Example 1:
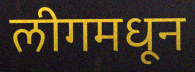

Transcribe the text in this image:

लीगमधून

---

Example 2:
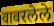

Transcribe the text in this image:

वावरलेले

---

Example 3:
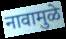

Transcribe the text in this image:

नावामुळे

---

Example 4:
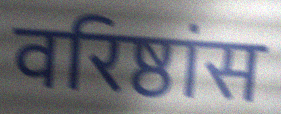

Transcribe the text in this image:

वरिष्ठांस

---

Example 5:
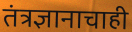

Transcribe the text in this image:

तंत्रज्ञानाचाही